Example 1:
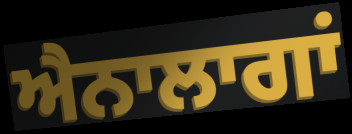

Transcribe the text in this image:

ਐਨਾਲਾਗਾਂ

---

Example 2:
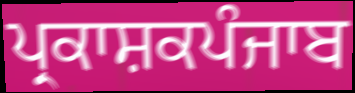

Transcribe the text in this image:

ਪ੍ਰਕਾਸ਼ਕਪੰਜਾਬ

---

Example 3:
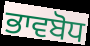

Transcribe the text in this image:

ਭਾਵਬੋਧ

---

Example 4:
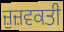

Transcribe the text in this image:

ਜ਼ੁਜ਼ਵਕਤੀ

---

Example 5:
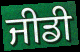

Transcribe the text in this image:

ਜੀਡੀ